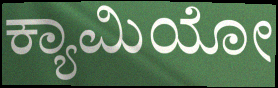
ಕ್ಯಾಮಿಯೋ